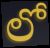
లో